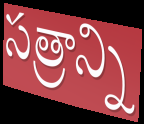
సత్రాన్ని